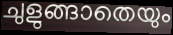
ചുളുങ്ങാതെയും